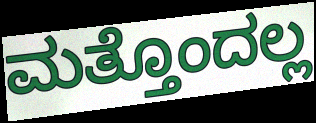
ಮತ್ತೊಂದಲ್ಲ